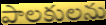
పాలకులను